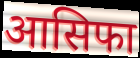
आसिफा